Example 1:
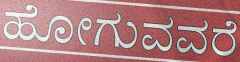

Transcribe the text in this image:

ಹೋಗುವವರೆ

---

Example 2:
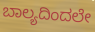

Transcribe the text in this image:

ಬಾಲ್ಯದಿಂದಲೇ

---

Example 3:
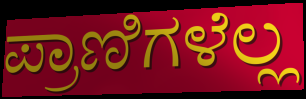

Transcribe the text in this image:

ಪ್ರಾಣಿಗಳೆಲ್ಲ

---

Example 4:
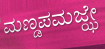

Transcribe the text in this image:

ಮಣ್ಡಪಮಜ್ಝೇ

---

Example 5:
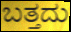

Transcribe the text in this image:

ಬತ್ತದು